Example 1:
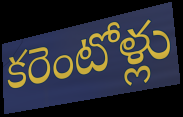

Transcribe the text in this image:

కరెంటోళ్లు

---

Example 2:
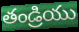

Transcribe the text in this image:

తండ్రియు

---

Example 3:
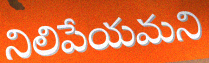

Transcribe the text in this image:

నిలిపేయమని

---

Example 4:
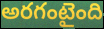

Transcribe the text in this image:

అరగంటైంది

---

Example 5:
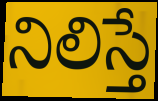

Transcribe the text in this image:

నిలిస్తే